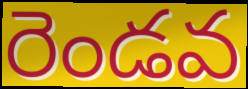
రెండవ